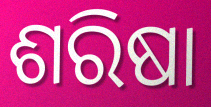
ଶରିଷା